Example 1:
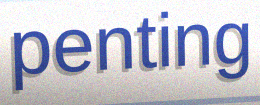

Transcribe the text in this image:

penting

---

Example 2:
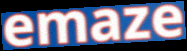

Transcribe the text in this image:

emaze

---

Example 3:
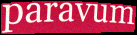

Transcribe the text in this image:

paravum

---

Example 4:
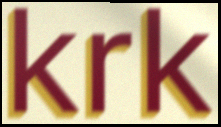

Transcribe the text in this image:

krk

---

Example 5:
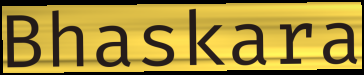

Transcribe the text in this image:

Bhaskara